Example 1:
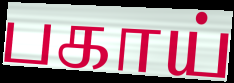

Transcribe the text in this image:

பகாய்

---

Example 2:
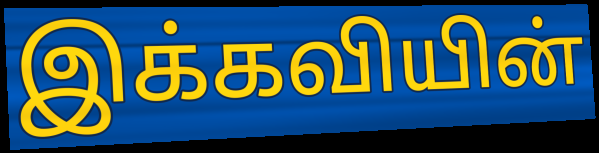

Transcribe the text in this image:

இக்கவியின்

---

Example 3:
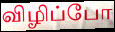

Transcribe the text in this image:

விழிப்போ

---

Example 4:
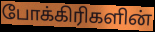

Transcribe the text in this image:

போக்கிரிகளின்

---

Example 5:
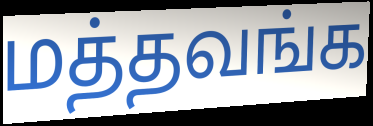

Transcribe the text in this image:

மத்தவங்க